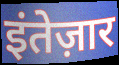
इंतेज़ार